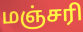
மஞ்சரி